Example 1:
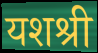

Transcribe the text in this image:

यशश्री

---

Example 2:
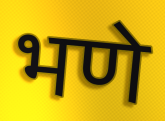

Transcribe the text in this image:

भणे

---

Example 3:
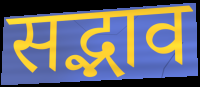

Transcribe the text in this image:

सद्भाव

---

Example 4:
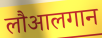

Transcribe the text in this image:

लौआलगान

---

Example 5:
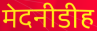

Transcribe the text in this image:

मेदनीडीह